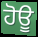
ਹੋਊ